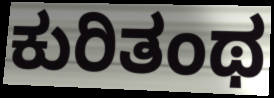
ಕುರಿತಂಥ